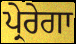
ਪ੍ਰੇਰੇਗਾ